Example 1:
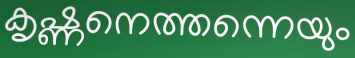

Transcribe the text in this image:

കൃഷ്ണനെത്തന്നെയും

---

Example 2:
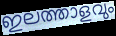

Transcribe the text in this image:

ഇലത്താളവും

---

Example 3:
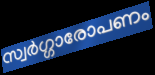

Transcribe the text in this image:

സ്വർഗ്ഗാരോപണം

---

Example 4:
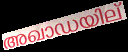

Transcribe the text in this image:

അഖാഡയില്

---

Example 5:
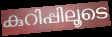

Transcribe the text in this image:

കുറിപ്പിലൂടെ